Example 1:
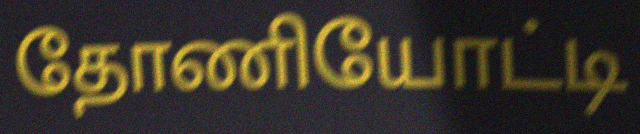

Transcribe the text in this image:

தோணியோட்டி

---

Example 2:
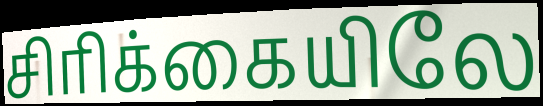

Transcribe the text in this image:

சிரிக்கையிலே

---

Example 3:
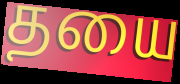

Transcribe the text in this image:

தயை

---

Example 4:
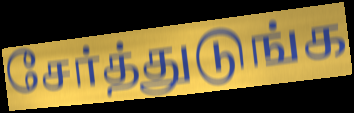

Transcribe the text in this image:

சேர்த்துடுங்க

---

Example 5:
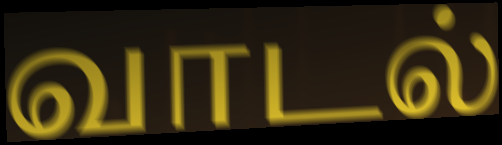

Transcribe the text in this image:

வாடல்